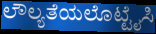
ಲೌಲ್ಯತೆಯಲೊಟ್ಟೈಸಿ